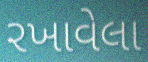
રખાવેલા